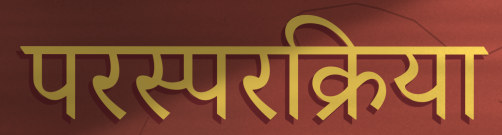
परस्परक्रिया